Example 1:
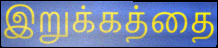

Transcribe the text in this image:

இறுக்கத்தை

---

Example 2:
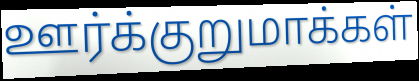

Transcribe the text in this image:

ஊர்க்குறுமாக்கள்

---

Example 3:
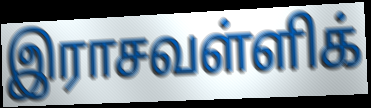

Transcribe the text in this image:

இராசவள்ளிக்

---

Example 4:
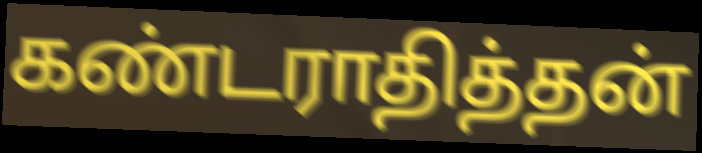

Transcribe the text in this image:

கண்டராதித்தன்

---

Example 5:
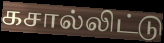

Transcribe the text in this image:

கசால்லிட்டு